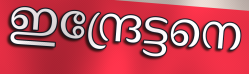
ഇന്ദ്രേട്ടനെ